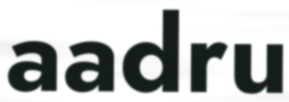
aadru